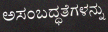
ಅಸಂಬದ್ಧತೆಗಳನ್ನು